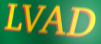
LVAD